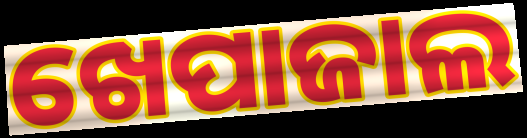
ଖେପାଜାଲ